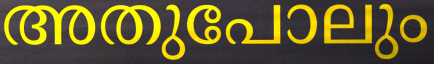
അതുപോലും